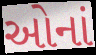
ઓનાં